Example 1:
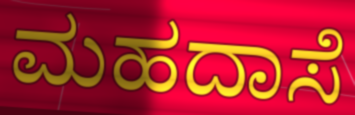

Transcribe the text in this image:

ಮಹದಾಸೆ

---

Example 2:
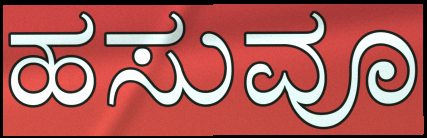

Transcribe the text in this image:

ಹಸುವೂ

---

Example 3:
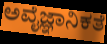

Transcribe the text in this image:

ಅವೈಜ್ಞಾನಿಕತೆ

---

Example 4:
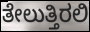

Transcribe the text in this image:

ತೇಲುತ್ತಿರಲಿ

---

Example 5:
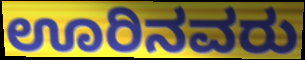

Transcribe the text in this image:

ಊರಿನವರು